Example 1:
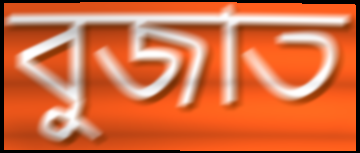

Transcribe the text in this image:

বুজাত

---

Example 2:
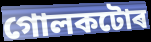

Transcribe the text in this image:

গোলকটোৰ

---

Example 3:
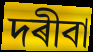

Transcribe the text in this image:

দৰীবা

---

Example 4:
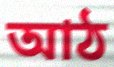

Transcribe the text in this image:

আঠ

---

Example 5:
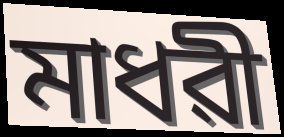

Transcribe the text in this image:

মাধৱী